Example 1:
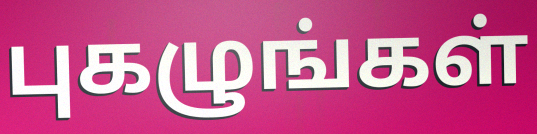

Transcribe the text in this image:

புகழுங்கள்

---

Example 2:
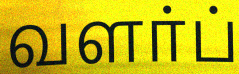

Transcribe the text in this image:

வளர்ப்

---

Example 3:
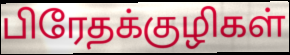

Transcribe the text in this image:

பிரேதக்குழிகள்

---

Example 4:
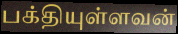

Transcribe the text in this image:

பக்தியுள்ளவன்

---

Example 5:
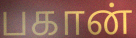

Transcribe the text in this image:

பகான்